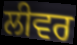
ਲੀਵਰ